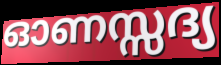
ഓണസ്സദ്യ